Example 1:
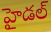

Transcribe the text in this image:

హైడల్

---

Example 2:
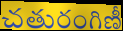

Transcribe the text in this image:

చతురంగిణీ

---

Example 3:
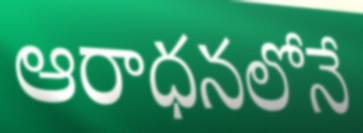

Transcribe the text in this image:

ఆరాధనలోనే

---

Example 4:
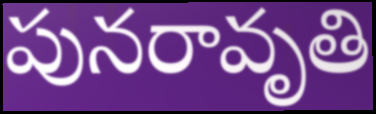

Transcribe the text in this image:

పునరావృతి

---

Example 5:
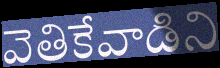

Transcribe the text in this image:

వెతికేవాడిని